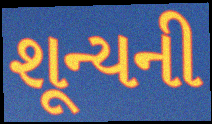
શૂન્યની